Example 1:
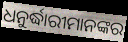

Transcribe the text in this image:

ଧନୁର୍ଦ୍ଧାରୀମାନଙ୍କର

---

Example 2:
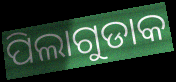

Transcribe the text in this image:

ପିଲାଗୁଡାକ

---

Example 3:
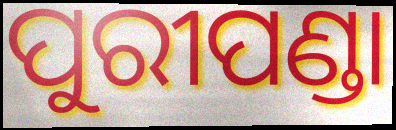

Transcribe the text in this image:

ପୁରୀପଣ୍ଡା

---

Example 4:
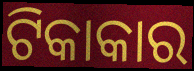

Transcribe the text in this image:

ଟିକାକାର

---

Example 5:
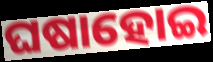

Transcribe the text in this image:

ଘଷାହୋଇ